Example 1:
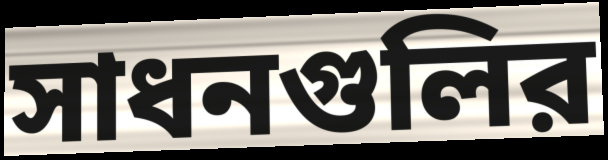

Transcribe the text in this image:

সাধনগুলির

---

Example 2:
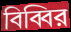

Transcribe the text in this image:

বিব্বির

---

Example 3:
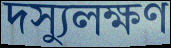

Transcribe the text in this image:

দস্যুলক্ষণ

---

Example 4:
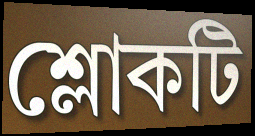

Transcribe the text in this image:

শ্লোকটি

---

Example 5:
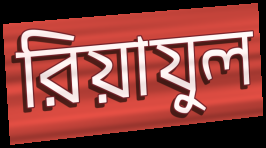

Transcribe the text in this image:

রিয়াযুল